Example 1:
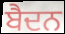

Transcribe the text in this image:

ਬੈਦਨ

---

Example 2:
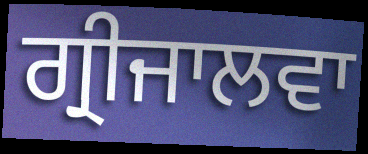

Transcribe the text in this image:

ਗ੍ਰੀਜਾਲਵਾ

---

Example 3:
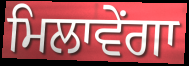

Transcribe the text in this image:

ਮਿਲਾਵੇਂਗਾ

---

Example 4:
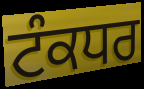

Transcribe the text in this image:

ਟੰਕਧਰ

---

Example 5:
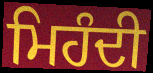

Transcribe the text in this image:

ਮਿਹੰਦੀ